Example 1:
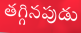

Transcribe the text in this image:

తగ్గినపుడు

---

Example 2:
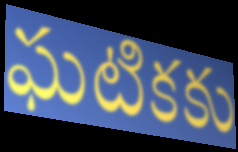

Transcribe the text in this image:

ఘటికకు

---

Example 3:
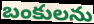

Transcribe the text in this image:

బంకులను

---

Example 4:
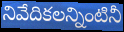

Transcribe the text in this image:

నివేదికలన్నింటినీ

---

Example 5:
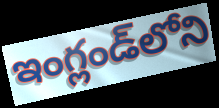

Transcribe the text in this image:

ఇంగ్లండ్‌లోని